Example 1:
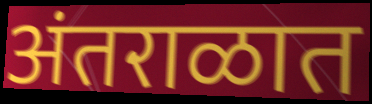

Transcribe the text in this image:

अंतराळात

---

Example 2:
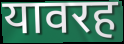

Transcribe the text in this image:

यावरह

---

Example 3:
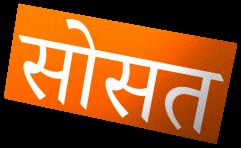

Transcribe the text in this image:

सोसत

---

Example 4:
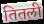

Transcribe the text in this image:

तितली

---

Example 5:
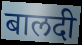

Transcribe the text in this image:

बालदी